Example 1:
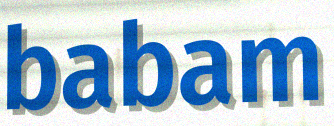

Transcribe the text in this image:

babam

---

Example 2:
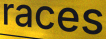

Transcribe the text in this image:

races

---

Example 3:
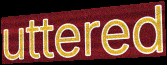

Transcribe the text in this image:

uttered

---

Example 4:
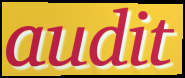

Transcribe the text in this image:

audit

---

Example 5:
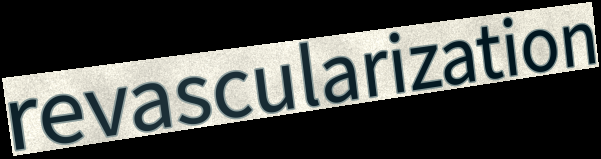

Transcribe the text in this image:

revascularization